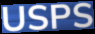
USPS